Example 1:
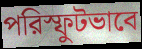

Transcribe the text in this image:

পরিস্ফুটভাবে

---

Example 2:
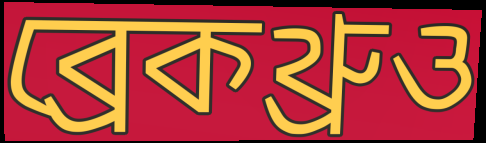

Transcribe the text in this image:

ব্রেকথ্রুও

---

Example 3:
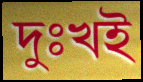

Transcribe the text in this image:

দুঃখই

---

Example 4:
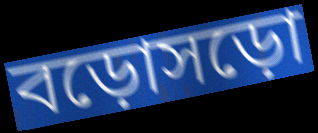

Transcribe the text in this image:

বড়োসড়ো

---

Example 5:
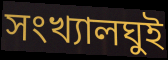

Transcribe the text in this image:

সংখ্যালঘুই